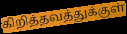
கிறித்தவத்துக்குள்